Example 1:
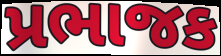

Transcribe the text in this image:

પ્રભાજક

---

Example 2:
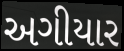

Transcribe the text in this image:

અગીયાર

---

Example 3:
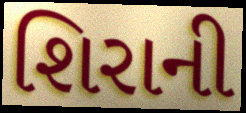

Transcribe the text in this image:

શિરાની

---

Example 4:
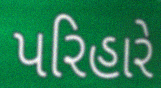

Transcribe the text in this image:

પરિહારે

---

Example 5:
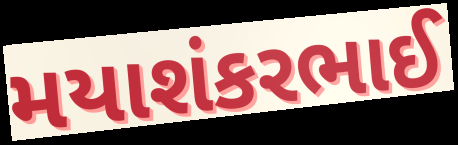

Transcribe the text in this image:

મયાશંકરભાઈ